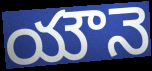
యౌనె